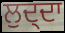
ਲੁਦ੍ਦਾ